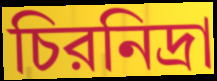
চিরনিদ্রা